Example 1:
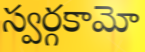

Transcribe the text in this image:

స్వర్గకామో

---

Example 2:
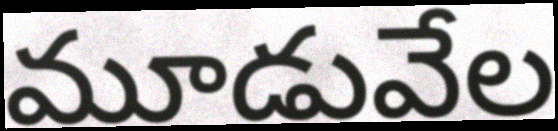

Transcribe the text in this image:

మూడువేల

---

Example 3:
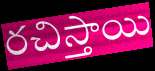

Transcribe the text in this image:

రచిస్తాయి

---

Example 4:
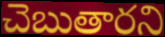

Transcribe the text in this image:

చెబుతారని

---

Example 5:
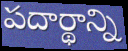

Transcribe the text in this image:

పదార్థాన్ని